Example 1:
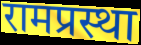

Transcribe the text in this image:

रामप्रस्था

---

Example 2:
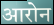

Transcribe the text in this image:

आरोन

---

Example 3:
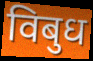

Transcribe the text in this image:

विबुध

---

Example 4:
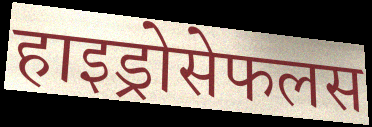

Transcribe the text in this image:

हाइड्रोसेफलस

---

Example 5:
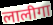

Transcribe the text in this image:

लालीगा